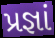
પ્રજ્ઞાં